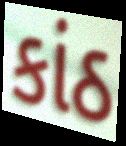
કાંઠ